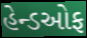
હેન્ડઓફ